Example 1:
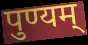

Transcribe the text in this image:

पुण्यम्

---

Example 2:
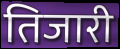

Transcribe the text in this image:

तिजारी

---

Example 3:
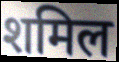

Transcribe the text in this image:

शमिल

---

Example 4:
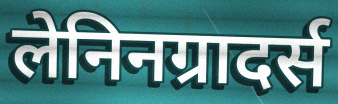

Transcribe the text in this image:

लेनिनग्रादर्स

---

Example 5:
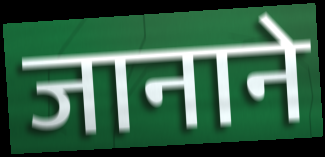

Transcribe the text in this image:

जानाने